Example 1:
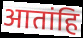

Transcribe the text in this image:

आतांहि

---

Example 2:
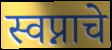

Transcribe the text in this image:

स्वप्नाचे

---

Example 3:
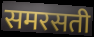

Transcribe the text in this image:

समरसती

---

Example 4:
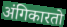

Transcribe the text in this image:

अंगिकारतो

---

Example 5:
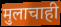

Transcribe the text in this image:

मुलाचाही